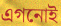
এগনোই